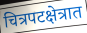
चित्रपटक्षेत्रात